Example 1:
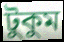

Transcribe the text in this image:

টুকুম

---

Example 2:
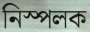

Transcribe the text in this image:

নিস্পলক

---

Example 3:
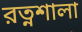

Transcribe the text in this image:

রত্নশালা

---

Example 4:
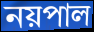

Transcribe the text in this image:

নয়পাল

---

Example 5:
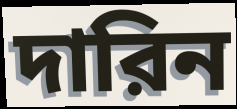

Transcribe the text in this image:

দারিন